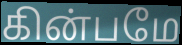
கின்பமே